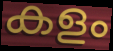
കളം